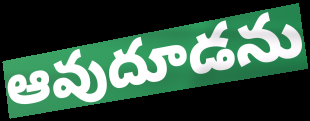
ఆవుదూడను